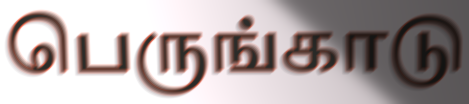
பெருங்காடு